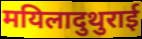
मयिलादुथुराई